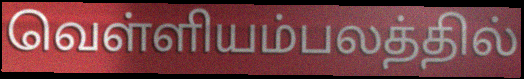
வெள்ளியம்பலத்தில்